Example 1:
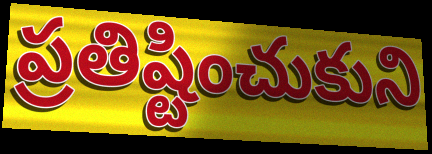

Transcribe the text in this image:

ప్రతిష్టించుకుని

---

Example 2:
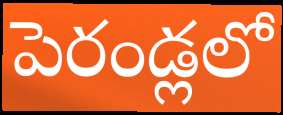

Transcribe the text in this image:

పెరండ్లలో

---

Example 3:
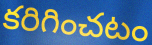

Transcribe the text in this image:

కరిగించటం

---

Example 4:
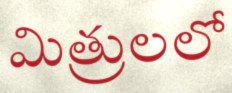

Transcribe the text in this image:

మిత్రులలో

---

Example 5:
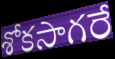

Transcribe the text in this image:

శోకసాగరే